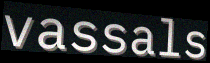
vassals